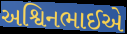
અશ્વિનભાઈએ